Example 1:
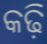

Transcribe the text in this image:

କଢ଼ି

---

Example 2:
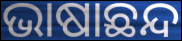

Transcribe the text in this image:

ଭାଷାଛନ୍ଦ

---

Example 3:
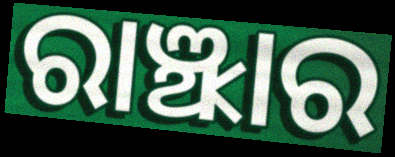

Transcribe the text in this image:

ରାଞ୍ଝାର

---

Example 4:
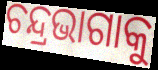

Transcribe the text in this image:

ଚନ୍ଦ୍ରଭାଗାକୁ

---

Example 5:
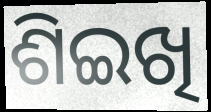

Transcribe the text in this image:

ଶିଇଖି